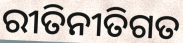
ରୀତିନୀତିଗତ